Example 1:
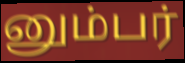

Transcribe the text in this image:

னும்பர்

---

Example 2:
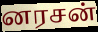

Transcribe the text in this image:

னரசன்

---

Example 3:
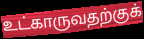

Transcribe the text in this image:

உட்காருவதற்குக்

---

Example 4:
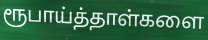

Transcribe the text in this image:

ரூபாய்த்தாள்களை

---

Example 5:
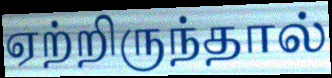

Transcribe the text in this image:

ஏற்றிருந்தால்